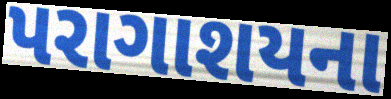
પરાગાશયના